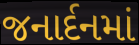
જનાર્દનમાં